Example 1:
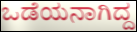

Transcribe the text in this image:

ಒಡೆಯನಾಗಿದ್ದ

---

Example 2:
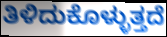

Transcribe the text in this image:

ತಿಳಿದುಕೊಳ್ಳುತ್ತದೆ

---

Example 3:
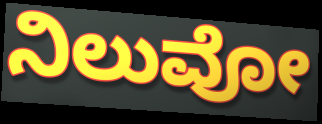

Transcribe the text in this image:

ನಿಲುವೋ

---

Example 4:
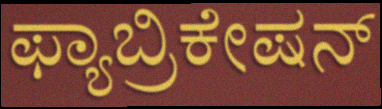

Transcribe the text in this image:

ಫ್ಯಾಬ್ರಿಕೇಷನ್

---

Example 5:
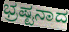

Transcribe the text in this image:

ಭ್ರಷ್ಟನಾದ